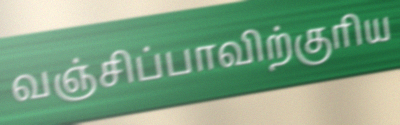
வஞ்சிப்பாவிற்குரிய